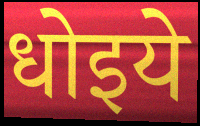
धोइये